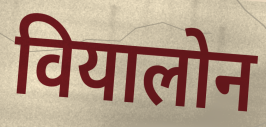
वियालोन